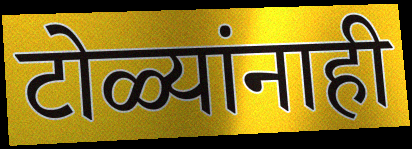
टोळ्यांनाही